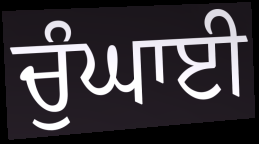
ਚੁੰਘਾਈ